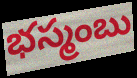
భస్మంబు